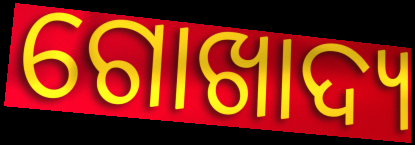
ଗୋଖାଦ୍ୟ